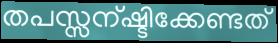
തപസ്സന്ഷ്ടിക്കേണ്ടത്